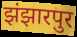
झंझारपुर